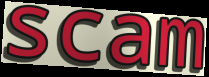
scam